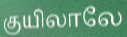
குயிலாலே